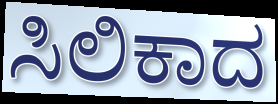
ಸಿಲಿಕಾದ